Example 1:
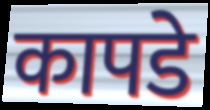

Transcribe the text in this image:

कापडे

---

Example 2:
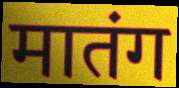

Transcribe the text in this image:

मातंग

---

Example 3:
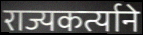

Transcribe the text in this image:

राज्यकर्त्याने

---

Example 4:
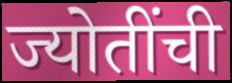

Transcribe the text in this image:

ज्योतींची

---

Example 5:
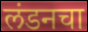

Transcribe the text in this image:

लंडनचा